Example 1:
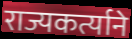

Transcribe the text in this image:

राज्यकर्त्याने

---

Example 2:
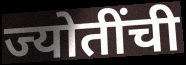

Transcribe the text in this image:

ज्योतींची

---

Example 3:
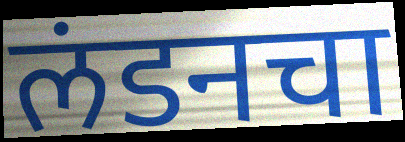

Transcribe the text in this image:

लंडनचा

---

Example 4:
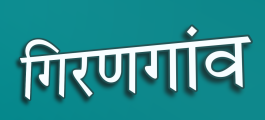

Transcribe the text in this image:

गिरणगांव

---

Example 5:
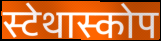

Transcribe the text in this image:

स्टेथास्कोप